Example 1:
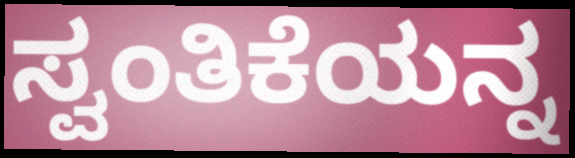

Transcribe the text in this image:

ಸ್ವಂತಿಕೆಯನ್ನ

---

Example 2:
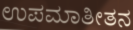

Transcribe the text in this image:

ಉಪಮಾತೀತನ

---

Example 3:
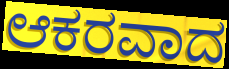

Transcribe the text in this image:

ಆಕರವಾದ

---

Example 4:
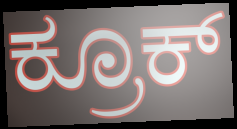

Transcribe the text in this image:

ಕ್ರೂಕ್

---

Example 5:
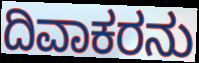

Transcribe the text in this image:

ದಿವಾಕರನು